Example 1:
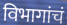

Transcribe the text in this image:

विभागांचं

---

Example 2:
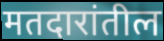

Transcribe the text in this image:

मतदारांतील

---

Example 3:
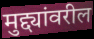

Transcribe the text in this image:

मुद्द्यांवरील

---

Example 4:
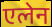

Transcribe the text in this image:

एलेन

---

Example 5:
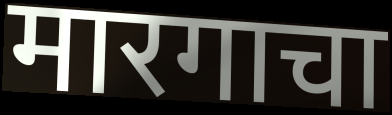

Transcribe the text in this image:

मारगाचा